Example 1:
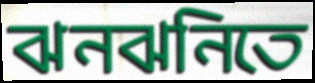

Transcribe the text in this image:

ঝনঝনিতে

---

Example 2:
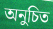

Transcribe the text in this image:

অনুচিত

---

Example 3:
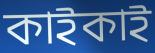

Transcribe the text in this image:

কাইকাই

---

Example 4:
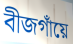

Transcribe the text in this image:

বীজগাঁয়ে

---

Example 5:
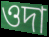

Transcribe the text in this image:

ওদা